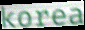
korea